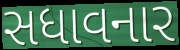
સધાવનાર